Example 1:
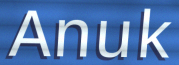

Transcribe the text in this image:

Anuk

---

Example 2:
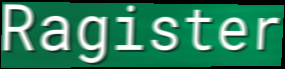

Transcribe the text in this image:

Ragister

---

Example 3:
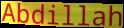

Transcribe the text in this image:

Abdillah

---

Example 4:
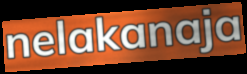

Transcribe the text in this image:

nelakanaja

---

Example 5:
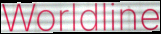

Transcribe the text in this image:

Worldline